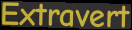
Extravert